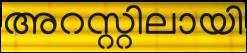
അറസ്റ്റിലായി